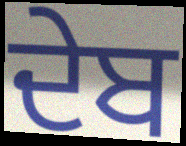
ਦੇਬ